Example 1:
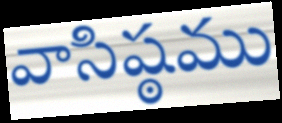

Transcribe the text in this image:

వాసిష్ఠము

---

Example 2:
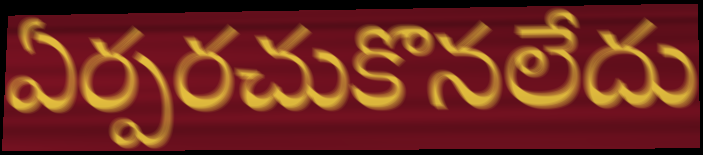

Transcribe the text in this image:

ఏర్పరచుకొనలేదు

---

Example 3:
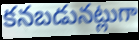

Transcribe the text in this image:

కనబడునట్లుగా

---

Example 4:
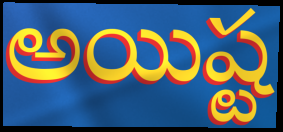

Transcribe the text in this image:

అయిష్ట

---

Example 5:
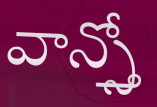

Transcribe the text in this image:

వాన్స్తో